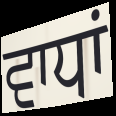
ਵਾਧਾਂ